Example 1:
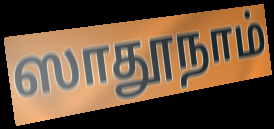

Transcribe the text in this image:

ஸாதூநாம்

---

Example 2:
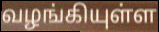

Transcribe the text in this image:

வழங்கியுள்ள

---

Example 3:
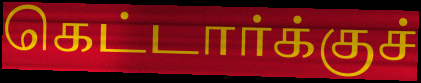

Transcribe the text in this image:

கெட்டார்க்குச்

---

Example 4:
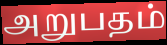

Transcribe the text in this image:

அறுபதம்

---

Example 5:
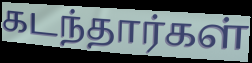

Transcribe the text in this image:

கடந்தார்கள்